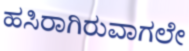
ಹಸಿರಾಗಿರುವಾಗಲೇ